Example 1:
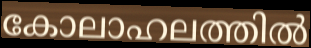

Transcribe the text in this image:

കോലാഹലത്തിൽ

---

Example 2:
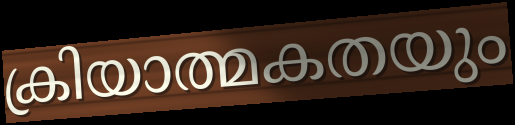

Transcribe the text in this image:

ക്രിയാത്മകതയും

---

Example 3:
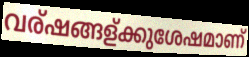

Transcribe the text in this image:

വര്ഷങ്ങള്ക്കുശേഷമാണ്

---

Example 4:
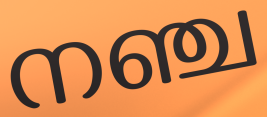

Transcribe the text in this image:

നഞ്ച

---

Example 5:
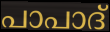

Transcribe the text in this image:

പാപാദ്